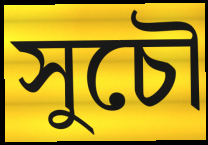
সুচৌ